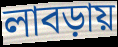
লাবড়ায়